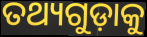
ତଥ୍ୟଗୁଡ଼ାକୁ